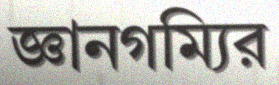
জ্ঞানগম্যির